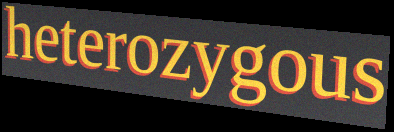
heterozygous